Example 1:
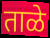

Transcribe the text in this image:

ताळे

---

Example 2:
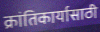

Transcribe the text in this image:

क्रांतिकार्यासाठी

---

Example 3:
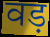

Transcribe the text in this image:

वड़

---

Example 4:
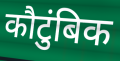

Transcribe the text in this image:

कौटुंबिक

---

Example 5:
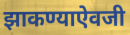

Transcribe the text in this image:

झाकण्याऐवजी